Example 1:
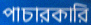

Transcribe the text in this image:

পাচারকারি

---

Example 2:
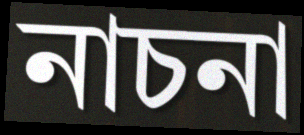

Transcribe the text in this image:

নাচনা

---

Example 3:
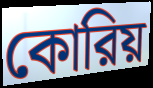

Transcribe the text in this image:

কোরিয়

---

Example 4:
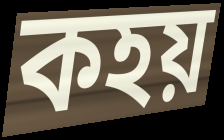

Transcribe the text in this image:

কহয়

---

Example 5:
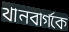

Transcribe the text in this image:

থানবার্গকে